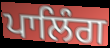
ਪਾਲਿੰਗ